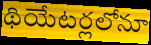
థియేటర్లలోనూ